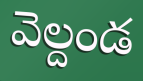
వెల్దండ